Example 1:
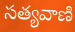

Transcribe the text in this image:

సత్యవాణి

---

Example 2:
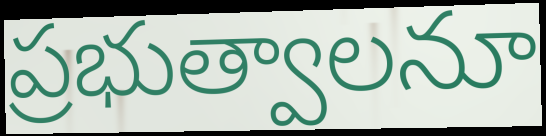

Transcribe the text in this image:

ప్రభుత్వాలనూ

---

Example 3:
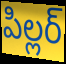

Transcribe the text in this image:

పిల్లర్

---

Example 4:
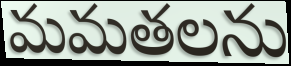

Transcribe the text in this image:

మమతలను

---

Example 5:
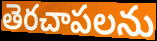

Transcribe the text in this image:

తెరచాపలను